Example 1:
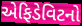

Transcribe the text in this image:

એફિડેવિટનો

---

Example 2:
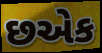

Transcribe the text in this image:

છએક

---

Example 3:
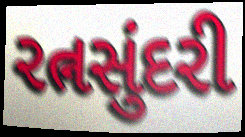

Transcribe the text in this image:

રત્નસુંદરી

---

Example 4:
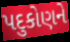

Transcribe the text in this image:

પદુકોણને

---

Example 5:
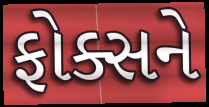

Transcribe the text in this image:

ફોક્સને